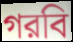
গরবি